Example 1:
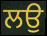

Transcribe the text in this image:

ਲਉ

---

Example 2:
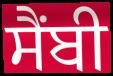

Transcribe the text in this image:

ਸੈਂਬੀ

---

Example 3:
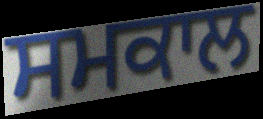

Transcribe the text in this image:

ਸਮਕਾਲ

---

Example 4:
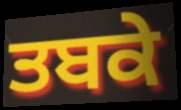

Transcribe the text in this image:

ਤਬਕੇ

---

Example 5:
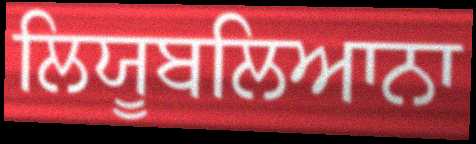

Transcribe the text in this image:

ਲਿਯੂਬਲਿਆਨਾ